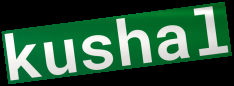
kushal